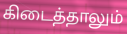
கிடைத்தாலும்